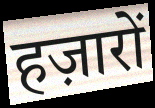
हज़ारों